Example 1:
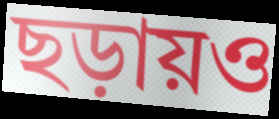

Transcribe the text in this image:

ছড়ায়ও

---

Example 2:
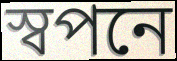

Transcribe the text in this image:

স্বপনে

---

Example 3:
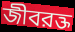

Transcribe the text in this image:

জীবরক্ত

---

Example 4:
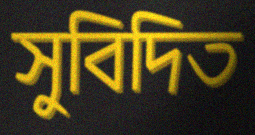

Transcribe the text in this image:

সুবিদিত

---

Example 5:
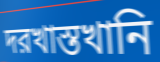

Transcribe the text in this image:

দরখাস্তখানি